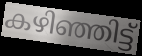
കഴിഞ്ഞിട്ട്